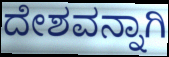
ದೇಶವನ್ನಾಗಿ